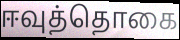
ஈவுத்தொகை